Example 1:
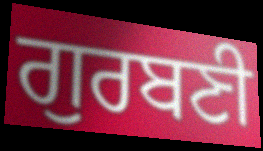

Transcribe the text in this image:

ਗੁਰਬਣੀ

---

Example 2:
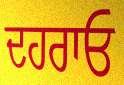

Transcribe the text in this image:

ਦਹਰਾਓ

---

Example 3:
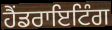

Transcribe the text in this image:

ਹੈਂਡਰਾਇਟਿੰਗ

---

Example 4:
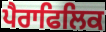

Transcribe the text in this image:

ਪੈਰਾਫਿਲਿਕ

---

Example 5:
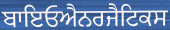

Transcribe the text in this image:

ਬਾਇਓਐਨਰਜੈਟਿਕਸ